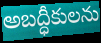
అబద్ధీకులను